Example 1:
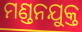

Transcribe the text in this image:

ମଣ୍ଡନଯୁକ୍ତ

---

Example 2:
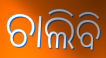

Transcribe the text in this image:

ଚାଲିବି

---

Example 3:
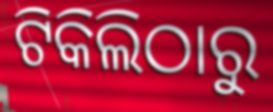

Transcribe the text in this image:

ଟିକିଲିଠାରୁ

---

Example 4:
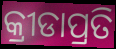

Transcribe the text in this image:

କ୍ରୀଡାପ୍ରତି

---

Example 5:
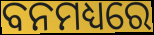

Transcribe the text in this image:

ବନମଧ୍ୟରେ